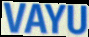
VAYU